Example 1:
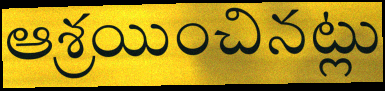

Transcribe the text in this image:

ఆశ్రయించినట్లు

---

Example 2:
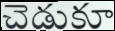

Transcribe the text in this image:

చెడుకూ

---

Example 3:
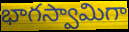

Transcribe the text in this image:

భాగస్వామిగా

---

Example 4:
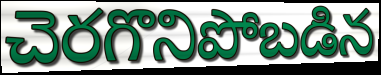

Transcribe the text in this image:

చెరగొనిపోబడిన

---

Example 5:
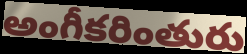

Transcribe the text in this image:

అంగీకరింతురు